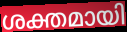
ശക്തമായി